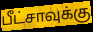
பீட்சாவுக்கு